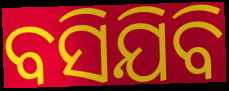
ବସିଯିବି